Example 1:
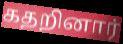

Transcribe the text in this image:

கதறினார்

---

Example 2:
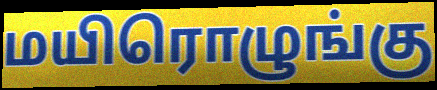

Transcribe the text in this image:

மயிரொழுங்கு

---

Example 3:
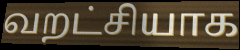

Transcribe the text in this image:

வறட்சியாக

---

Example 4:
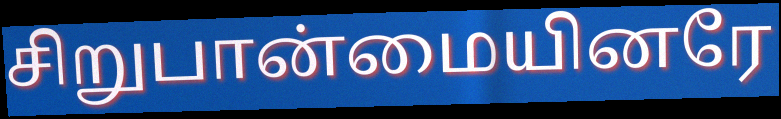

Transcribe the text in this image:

சிறுபான்மையினரே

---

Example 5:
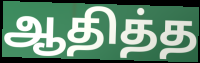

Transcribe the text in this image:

ஆதித்த